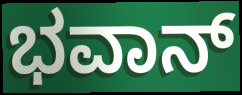
ಭವಾನ್